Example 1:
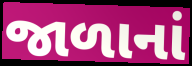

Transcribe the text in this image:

જાળાનાં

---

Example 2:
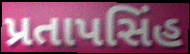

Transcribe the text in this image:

પ્રતાપસિંહ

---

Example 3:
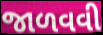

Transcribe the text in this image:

જાળવવી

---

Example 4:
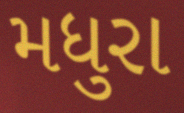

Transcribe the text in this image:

મધુરા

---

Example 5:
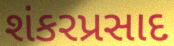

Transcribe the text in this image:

શંકરપ્રસાદ